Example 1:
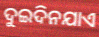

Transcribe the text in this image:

ଦୁଇଦିନଯାଏ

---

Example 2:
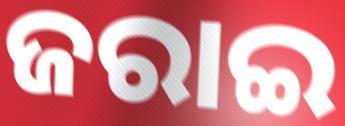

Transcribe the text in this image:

ଜରାଇ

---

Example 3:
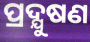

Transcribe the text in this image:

ପ୍ରଦ୍ଯୁଷଣ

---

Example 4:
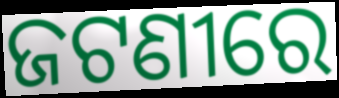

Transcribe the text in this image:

ଜଟଣୀରେ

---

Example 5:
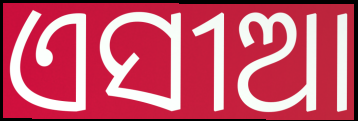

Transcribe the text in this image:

ଏସୀଆ